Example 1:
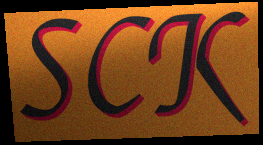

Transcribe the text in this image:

SCK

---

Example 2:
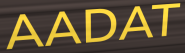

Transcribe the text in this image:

AADAT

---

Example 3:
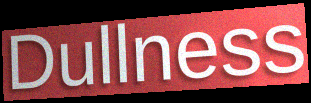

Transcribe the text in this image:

Dullness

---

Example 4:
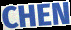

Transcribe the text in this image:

CHEN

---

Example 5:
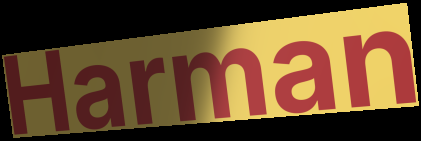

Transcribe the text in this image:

Harman